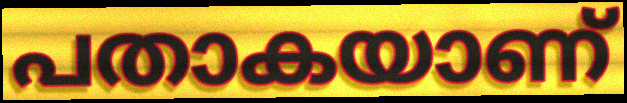
പതാകയാണ്